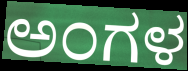
ಅಂಗಳ